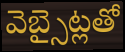
వెబ్సైట్లతో